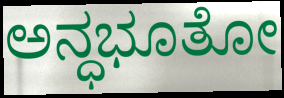
ಅನ್ಧಭೂತೋ